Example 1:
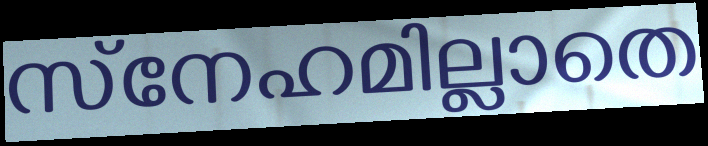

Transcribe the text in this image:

സ്‌നേഹമില്ലാതെ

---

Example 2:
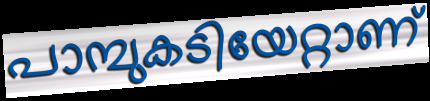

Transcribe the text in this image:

പാമ്പുകടിയേറ്റാണ്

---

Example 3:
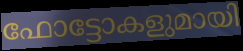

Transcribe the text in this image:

ഫോട്ടോകളുമായി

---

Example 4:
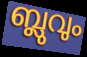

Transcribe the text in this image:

ബ്ലുവും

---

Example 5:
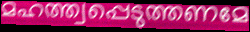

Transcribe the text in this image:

മഹത്ത്വപ്പെടുത്തണമേ